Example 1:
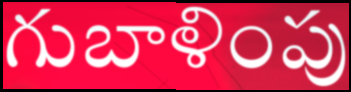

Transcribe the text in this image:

గుబాళింపు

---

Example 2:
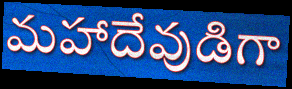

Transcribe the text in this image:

మహాదేవుడిగా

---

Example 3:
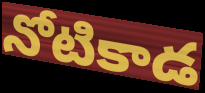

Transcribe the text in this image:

నోటికాడ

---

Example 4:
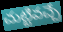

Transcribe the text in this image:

చుట్టివచ్చే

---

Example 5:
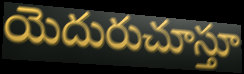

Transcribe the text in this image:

యెదురుచూస్తూ